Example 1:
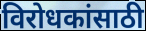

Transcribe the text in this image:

विरोधकांसाठी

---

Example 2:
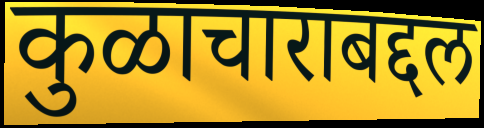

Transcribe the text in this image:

कुळाचाराबद्दल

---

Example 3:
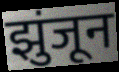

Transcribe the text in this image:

झुंजून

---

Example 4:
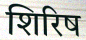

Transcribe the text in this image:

शिरिष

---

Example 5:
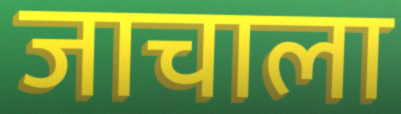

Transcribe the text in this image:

जाचाला